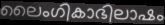
ലൈംഗികാഭിലാഷം